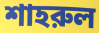
শাহরুল